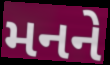
મનને